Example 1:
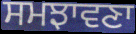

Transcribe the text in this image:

ਸਮਝਾਵਣਾ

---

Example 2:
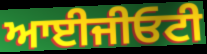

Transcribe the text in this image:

ਆਈਜੀਓਟੀ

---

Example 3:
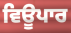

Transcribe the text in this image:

ਵਿਊਪਾਰ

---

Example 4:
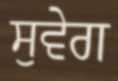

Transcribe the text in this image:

ਸੁਵੇਗ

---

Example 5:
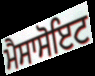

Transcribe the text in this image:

ਮੈਸਾਸੋਇਟ